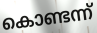
കൊണ്ടന്ന്